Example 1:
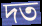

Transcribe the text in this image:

দত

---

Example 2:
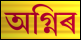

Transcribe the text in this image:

অগ্নিৰ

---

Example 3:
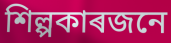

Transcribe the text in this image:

শিল্পকাৰজনে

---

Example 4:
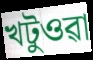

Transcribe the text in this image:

খটুওৱা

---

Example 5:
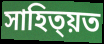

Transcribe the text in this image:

সাহিত্য়ত